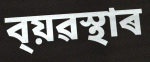
ব্য়ৱস্থাৰ